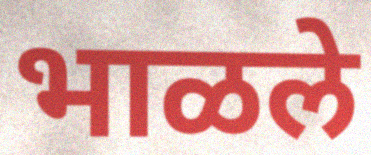
भाळले